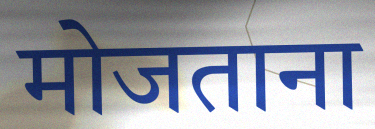
मोजताना